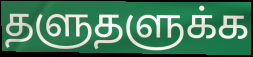
தளுதளுக்க